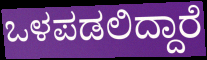
ಒಳಪಡಲಿದ್ದಾರೆ